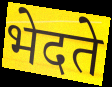
भेदते